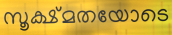
സൂക്ഷ്മതയോടെ